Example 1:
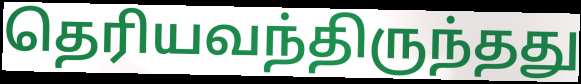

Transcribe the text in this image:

தெரியவந்திருந்தது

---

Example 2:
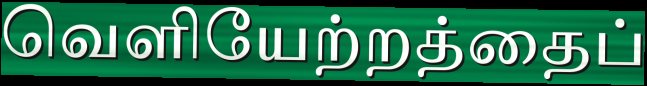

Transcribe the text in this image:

வெளியேற்றத்தைப்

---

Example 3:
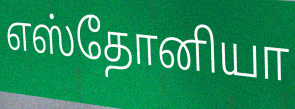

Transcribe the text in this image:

எஸ்தோனியா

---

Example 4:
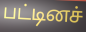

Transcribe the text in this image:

பட்டினச்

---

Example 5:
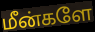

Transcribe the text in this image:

மீன்களே